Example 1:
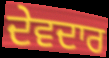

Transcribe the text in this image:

ਦੇਵਦਾਰ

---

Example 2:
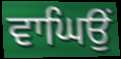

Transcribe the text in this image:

ਵਾਘਿਉਂ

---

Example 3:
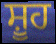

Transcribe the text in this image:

ਸ਼ੂਹ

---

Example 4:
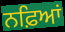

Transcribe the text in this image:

ਨਫ਼ਿਆਂ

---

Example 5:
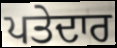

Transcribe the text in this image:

ਪਤੇਦਾਰ